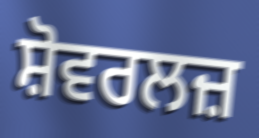
ਸ਼ੋਵਰਲਜ਼